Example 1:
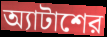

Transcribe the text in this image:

অ্যাটাশের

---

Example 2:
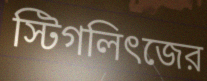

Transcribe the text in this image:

স্টিগলিৎজের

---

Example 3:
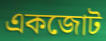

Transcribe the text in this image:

একজোট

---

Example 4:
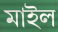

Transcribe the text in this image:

মাইল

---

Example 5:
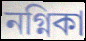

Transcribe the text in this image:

নগ্নিকা